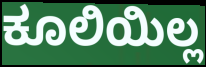
ಕೂಲಿಯಿಲ್ಲ